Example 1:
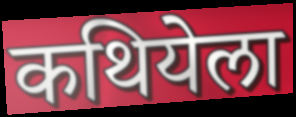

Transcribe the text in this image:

कथियेला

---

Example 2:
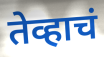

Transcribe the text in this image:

तेव्हाचं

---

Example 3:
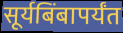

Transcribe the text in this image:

सूर्यबिंबापर्यंत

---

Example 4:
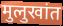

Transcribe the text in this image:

मुलुखांत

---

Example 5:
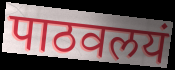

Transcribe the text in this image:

पाठवलयं